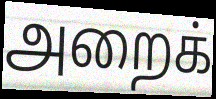
அறைக்